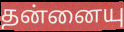
தன்னையு